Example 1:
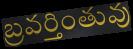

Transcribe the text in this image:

బ్రవర్తింతువు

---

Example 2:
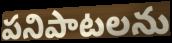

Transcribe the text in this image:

పనిపాటలను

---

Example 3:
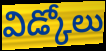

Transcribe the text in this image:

విడ్కోలు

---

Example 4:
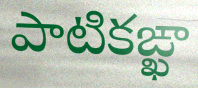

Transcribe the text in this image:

పాటికఙ్ఖా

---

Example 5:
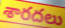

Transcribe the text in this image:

శారదలు